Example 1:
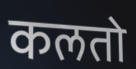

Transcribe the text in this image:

कलतो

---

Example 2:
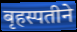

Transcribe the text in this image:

बृहस्पतीने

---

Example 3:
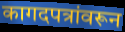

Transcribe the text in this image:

कागदपत्रांवरून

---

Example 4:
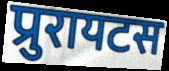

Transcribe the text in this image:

प्रुरायटस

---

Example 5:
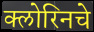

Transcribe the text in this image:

क्लोरिनचे